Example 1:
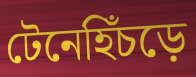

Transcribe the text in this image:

টেনেহিঁচড়ে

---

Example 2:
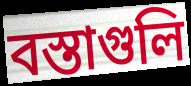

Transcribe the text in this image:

বস্তাগুলি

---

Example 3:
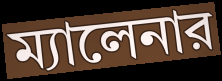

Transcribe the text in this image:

ম্যালেনার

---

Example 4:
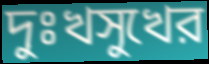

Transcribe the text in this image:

দুঃখসুখের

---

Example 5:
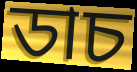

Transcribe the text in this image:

ডাচ